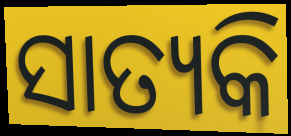
ସାତ୍ଯକି